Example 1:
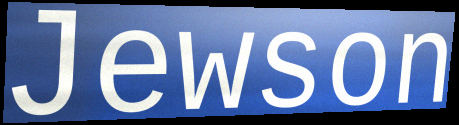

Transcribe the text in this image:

Jewson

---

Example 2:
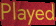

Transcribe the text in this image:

Played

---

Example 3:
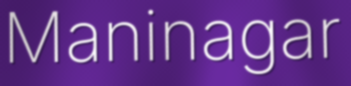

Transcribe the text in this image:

Maninagar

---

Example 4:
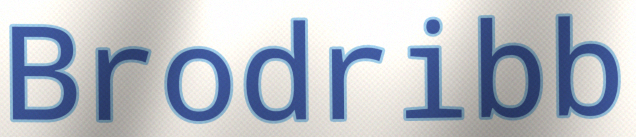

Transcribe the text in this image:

Brodribb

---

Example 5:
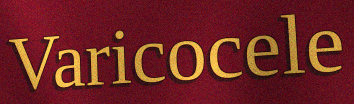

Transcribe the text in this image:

Varicocele